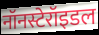
नॉनस्टेरॉइडल